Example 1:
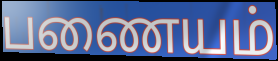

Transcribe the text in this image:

பணையம்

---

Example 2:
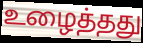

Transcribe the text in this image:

உழைத்தது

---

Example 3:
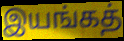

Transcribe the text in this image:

இயங்கத்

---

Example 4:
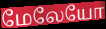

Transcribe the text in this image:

மேலேயோ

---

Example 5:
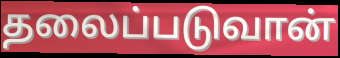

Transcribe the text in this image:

தலைப்படுவான்